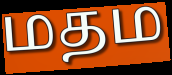
மதம